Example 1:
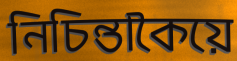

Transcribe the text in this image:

নিচিন্তাকৈয়ে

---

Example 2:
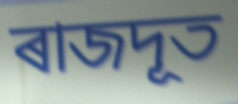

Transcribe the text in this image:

ৰাজদূত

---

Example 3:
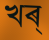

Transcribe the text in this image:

খৰ্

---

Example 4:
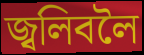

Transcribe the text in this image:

জ্বলিবলৈ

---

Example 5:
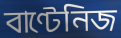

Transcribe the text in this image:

বাণ্টেনিজ